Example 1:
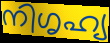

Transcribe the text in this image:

നിഗൃഹ്യ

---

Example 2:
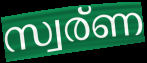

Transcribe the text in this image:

സ്വര്ണ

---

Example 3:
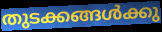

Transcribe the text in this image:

തുടക്കങ്ങൾക്കു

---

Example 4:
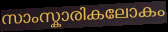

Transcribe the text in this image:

സാംസ്കാരികലോകം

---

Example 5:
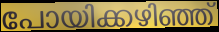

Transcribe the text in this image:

പോയിക്കഴിഞ്ഞ്